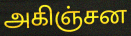
அகிஞ்சன